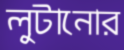
লুটানোর